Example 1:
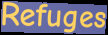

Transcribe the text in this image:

Refuges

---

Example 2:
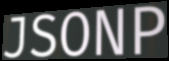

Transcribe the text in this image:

JSONP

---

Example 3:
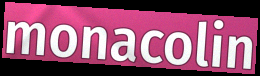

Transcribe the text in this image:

monacolin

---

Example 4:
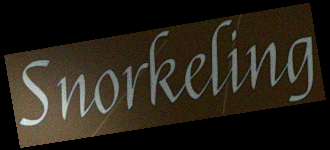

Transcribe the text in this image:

Snorkeling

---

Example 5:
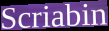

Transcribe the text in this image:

Scriabin